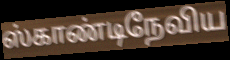
ஸ்காண்டிநேவிய